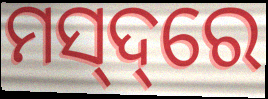
ମସ୍‌ଦ୍‌ରେ